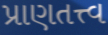
પ્રાણતત્ત્વ